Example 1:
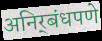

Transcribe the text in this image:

अनिर्बंधपणे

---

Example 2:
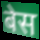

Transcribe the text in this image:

बेस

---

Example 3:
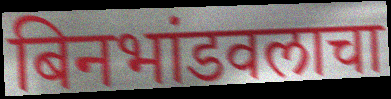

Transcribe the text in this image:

बिनभांडवलाचा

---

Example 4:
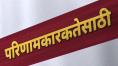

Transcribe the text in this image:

परिणामकारकतेसाठी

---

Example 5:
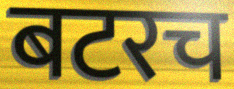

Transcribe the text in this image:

बटरच